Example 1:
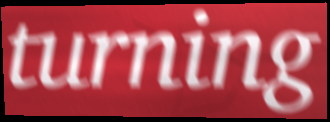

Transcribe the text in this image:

turning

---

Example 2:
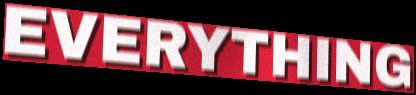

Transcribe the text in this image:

EVERYTHING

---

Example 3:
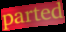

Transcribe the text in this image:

parted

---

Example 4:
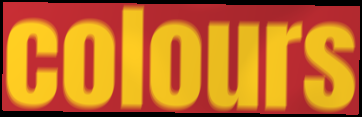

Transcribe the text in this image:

colours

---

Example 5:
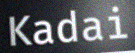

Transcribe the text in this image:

Kadai